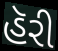
હૅરી